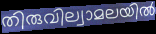
തിരുവില്വാമലയിൽ